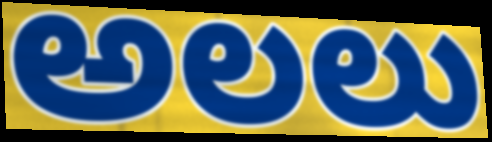
అలలు